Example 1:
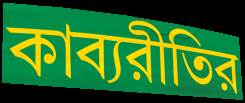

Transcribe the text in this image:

কাব্যরীতির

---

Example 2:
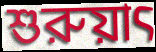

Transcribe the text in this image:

শুরুয়াৎ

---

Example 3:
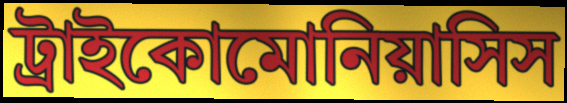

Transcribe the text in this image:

ট্রাইকোমোনিয়াসিস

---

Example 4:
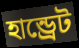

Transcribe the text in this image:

হান্ড্রেট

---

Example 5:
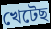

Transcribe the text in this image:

খেটেছ